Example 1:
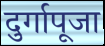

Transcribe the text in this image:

दुर्गापूजा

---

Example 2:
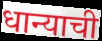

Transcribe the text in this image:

धान्याची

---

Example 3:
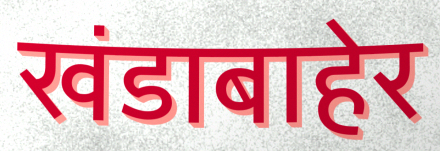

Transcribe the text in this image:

खंडाबाहेर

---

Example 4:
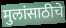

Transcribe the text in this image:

मुलांसाठीचे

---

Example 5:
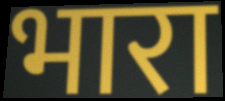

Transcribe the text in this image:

भारा